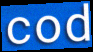
cod